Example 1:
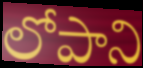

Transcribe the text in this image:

లోపాని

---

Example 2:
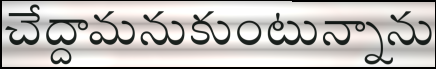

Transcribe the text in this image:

చేద్దామనుకుంటున్నాను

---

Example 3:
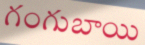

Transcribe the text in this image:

గంగుబాయి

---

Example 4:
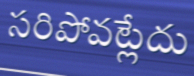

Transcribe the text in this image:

సరిపోవట్లేదు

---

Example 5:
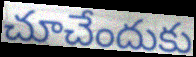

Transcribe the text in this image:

చూచేందుకు